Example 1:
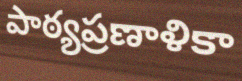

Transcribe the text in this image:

పాఠ్యప్రణాళికా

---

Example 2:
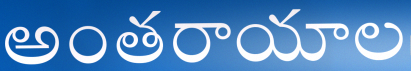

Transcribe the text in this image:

అంతరాయాల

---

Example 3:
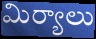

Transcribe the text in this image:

మిర్యాలు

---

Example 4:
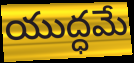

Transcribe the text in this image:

యుద్ధమే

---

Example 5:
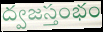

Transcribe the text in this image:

ద్వజస్తంభం